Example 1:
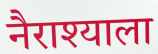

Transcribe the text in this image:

नैराश्याला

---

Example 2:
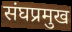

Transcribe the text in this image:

संघप्रमुख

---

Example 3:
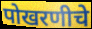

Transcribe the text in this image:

पोखरणीचे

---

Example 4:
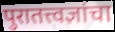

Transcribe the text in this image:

पुरातत्त्वज्ञांचा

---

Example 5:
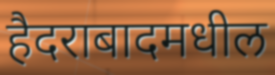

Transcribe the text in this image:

हैदराबादमधील